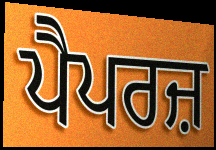
ਪੈਪਰਜ਼